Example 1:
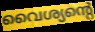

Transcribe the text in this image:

വൈശ്യന്റെ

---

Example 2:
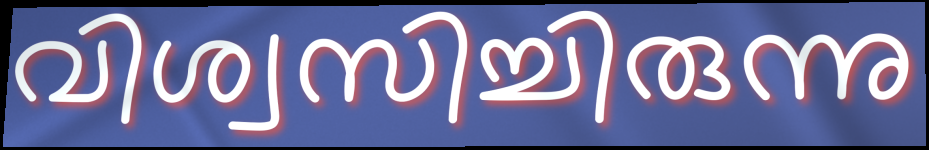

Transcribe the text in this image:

വിശ്വസിച്ചിരുന്നു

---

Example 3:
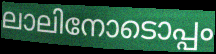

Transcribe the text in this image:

ലാലിനോടൊപ്പം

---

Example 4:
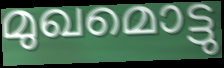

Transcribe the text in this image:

മുഖമൊട്ടു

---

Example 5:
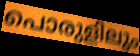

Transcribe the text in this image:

പൊരുളിലും